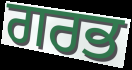
ਗਰਭ